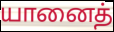
யானைத்